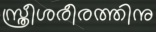
സ്ത്രീശരീരത്തിനു